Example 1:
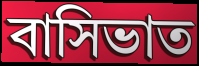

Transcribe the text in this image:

বাসিভাত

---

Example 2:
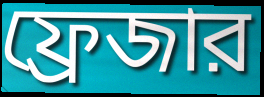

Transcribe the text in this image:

ফ্রেজার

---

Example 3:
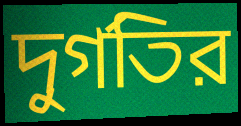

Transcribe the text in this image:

দুর্গতির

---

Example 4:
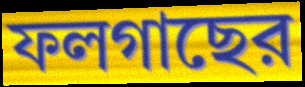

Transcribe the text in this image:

ফলগাছের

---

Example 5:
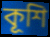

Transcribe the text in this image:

কূশি